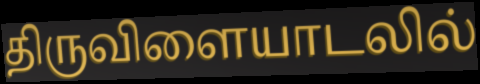
திருவிளையாடலில்